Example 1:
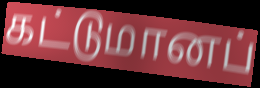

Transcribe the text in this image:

கட்டுமானப்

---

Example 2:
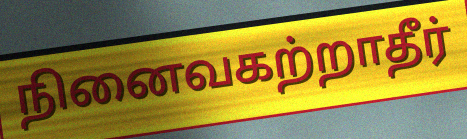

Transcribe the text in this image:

நினைவகற்றாதீர்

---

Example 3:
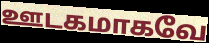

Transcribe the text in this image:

ஊடகமாகவே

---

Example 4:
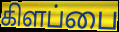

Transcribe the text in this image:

கிளப்பை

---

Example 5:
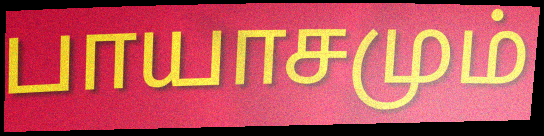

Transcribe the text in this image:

பாயாசமும்